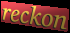
reckon